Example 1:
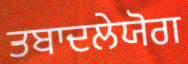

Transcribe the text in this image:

ਤਬਾਦਲੇਯੋਗ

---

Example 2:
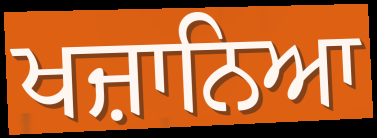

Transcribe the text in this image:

ਖਜ਼ਾਨਿਆ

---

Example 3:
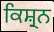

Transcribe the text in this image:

ਕਿਸ਼੍ਰਨ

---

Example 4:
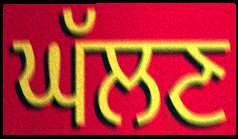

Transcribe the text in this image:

ਘੱਲਣ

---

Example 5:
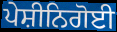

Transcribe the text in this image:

ਪੇਸ਼ੀਨਿਗੋਈ